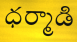
ధర్మాడి